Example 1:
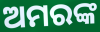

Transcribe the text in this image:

ଅମରଙ୍କ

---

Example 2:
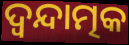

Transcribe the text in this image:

ଦ୍ୱନ୍ଦାତ୍ମକ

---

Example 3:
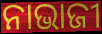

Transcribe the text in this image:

ନାଭାଜୀ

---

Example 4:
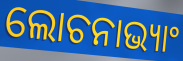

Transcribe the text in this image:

ଲୋଚନାଭ୍ୟାଂ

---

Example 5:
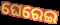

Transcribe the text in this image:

ଘେରେଇ